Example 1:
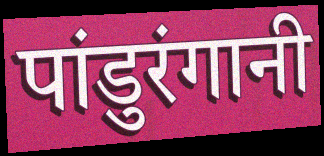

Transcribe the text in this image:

पांडुरंगानी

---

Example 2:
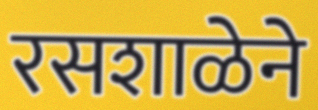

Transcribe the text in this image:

रसशाळेने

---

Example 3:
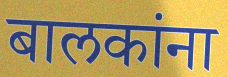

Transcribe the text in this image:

बालकांना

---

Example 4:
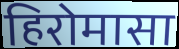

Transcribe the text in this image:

हिरोमासा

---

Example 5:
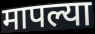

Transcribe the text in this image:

मापल्या